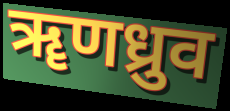
ॠणध्रुव